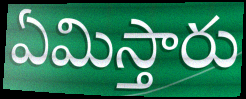
ఏమిస్తారు